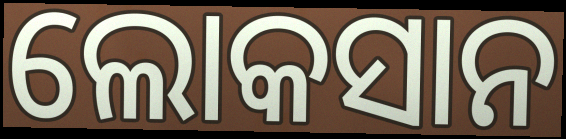
ଲୋକସାନ